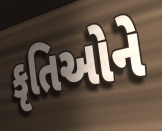
કૃતિઓને